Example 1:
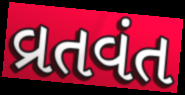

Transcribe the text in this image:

વ્રતવંત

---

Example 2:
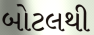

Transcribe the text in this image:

બોટલથી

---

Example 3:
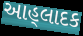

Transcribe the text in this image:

આહ્‌લાદક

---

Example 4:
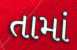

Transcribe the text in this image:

તામાં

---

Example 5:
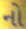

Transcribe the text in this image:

નો